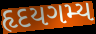
હૃદયગમ્ય